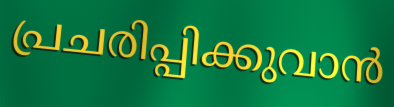
പ്രചരിപ്പിക്കുവാൻ